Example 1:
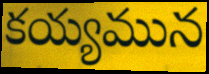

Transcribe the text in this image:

కయ్యమున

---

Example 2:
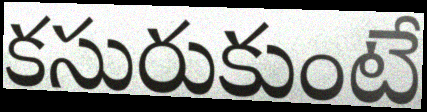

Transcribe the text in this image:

కసురుకుంటే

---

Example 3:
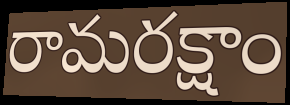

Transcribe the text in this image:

రామరక్షాం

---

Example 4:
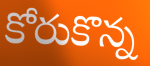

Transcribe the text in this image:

కోరుకొన్న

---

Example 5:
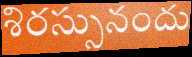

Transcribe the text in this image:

శిరస్సునందు